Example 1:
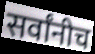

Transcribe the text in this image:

सर्वांनीच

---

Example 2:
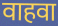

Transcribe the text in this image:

वाहवा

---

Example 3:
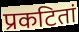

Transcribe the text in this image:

प्रकटितां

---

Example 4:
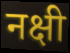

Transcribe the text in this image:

नक्षी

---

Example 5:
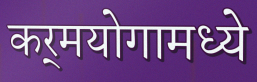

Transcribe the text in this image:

कर्मयोगामध्ये